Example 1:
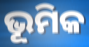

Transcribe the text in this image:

ଭୂମିକ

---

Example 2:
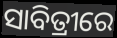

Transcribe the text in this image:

ସାବିତ୍ରୀରେ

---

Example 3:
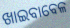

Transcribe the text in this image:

ଖାଇବାବେଳ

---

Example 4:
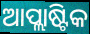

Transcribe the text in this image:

ଆପ୍ଲାଷ୍ଟିକ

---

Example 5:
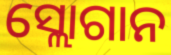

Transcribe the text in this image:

ସ୍ଲୋଗାନ